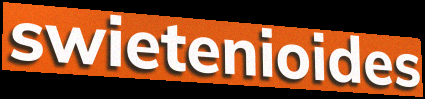
swietenioides